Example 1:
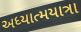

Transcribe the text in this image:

અધ્યાત્મયાત્રા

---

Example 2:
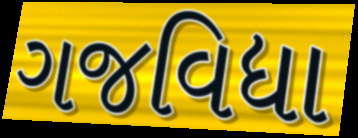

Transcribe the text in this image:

ગજવિદ્યા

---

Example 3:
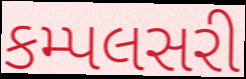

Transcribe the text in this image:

કમ્પલસરી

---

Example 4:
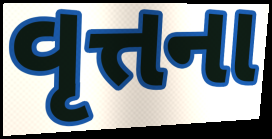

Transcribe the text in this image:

વૃત્તના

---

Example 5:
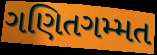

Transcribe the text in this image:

ગણિતગમ્મત